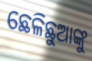
ଛେଳିଛୁଆଙ୍କୁ